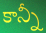
కాన్నీ